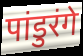
पांडुरंगे